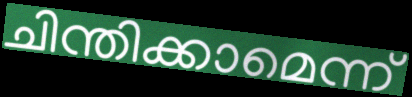
ചിന്തിക്കാമെന്ന്